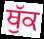
ਥੁੱਕ